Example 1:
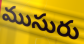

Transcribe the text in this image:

ముసురు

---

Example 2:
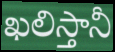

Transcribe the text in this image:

ఖలిస్తానీ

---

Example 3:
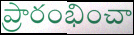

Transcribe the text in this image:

ప్రారంభించా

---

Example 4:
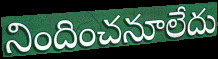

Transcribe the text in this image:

నిందించనూలేదు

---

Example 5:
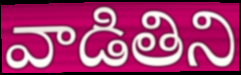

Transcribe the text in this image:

వాడితిని